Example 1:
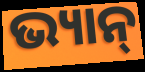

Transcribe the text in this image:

ଭ୍ୟାନ୍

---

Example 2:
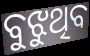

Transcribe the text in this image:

ବୁଝୁଥିବ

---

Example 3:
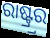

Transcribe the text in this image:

ରାଷ୍ଟ୍ର୍ରର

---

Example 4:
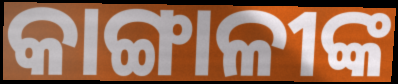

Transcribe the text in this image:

କାଙ୍ଗାଳୀଙ୍କ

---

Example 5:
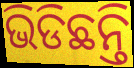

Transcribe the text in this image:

ଭିଡିଛନ୍ତି